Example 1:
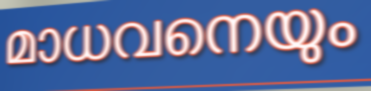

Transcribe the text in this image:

മാധവനെയും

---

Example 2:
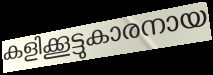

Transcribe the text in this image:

കളിക്കൂട്ടുകാരനായ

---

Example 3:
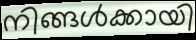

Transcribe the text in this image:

നിങ്ങൾക്കായി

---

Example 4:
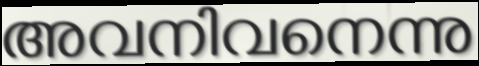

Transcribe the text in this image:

അവനിവനെന്നു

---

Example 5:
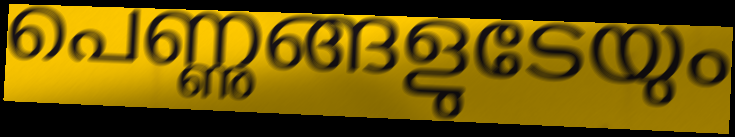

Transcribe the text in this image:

പെണ്ണുങ്ങളുടേയും